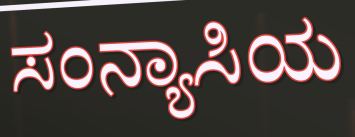
ಸಂನ್ಯಾಸಿಯ